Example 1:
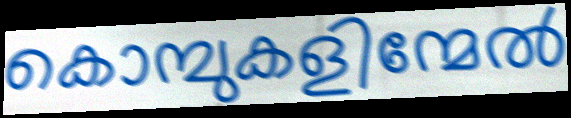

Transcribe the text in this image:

കൊമ്പുകളിന്മേൽ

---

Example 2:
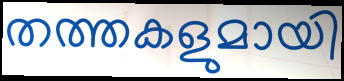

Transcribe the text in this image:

തത്തകളുമായി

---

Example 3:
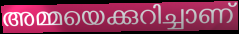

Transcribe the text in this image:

അമ്മയെക്കുറിച്ചാണ്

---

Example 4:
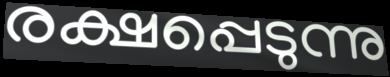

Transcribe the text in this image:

രക്ഷപ്പെടുന്നു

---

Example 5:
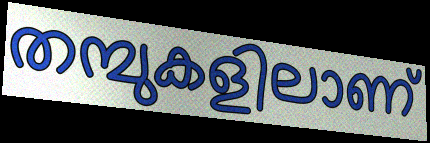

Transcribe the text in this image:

തമ്പുകളിലാണ്